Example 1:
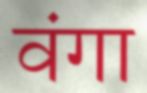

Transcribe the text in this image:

वंगा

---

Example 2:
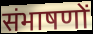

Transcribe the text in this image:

संभाषणों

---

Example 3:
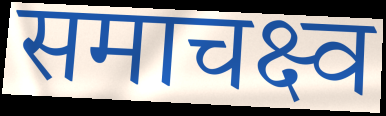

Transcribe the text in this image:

समाचक्ष्व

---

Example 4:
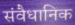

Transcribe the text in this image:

संवैधानिक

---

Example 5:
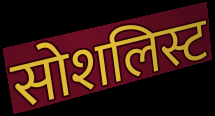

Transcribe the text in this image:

सोशलिस्ट